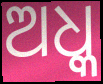
ଅଧ୍କ